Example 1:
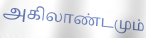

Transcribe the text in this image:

அகிலாண்டமும்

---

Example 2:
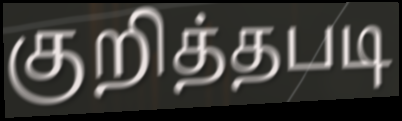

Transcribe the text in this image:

குறித்தபடி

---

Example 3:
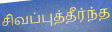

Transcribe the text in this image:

சிவப்புத்தீர்ந்த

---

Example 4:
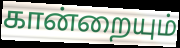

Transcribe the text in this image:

கான்றையும்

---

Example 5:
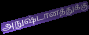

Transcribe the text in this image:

அநுஷ்டானத்துக்கு